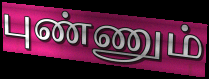
புண்ணும்